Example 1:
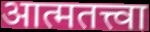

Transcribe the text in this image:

आत्मतत्त्वा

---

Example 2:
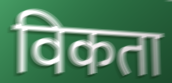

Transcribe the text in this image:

विकता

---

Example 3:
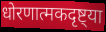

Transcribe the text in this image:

धोरणात्मकदृष्ट्या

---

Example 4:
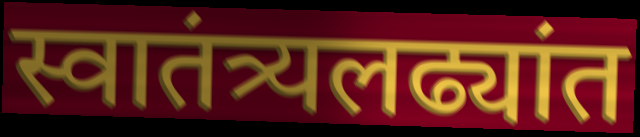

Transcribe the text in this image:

स्वातंत्र्यलढ्यांत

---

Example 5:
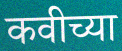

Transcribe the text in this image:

कवीच्या